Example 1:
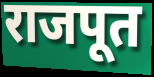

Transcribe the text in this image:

राजपूत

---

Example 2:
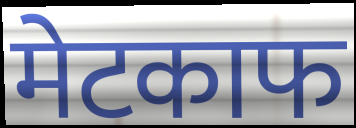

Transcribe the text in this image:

मेटकाफ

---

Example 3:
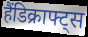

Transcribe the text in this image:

हैंडिक्राफ्ट्स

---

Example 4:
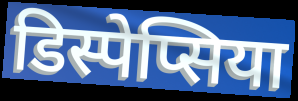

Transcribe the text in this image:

डिस्पेप्सिया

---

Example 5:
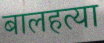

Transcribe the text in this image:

बालहत्या